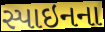
સ્પાઇનના